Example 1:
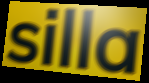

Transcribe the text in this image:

silla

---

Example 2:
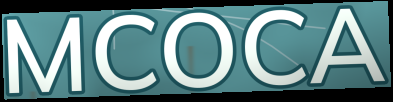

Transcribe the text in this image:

MCOCA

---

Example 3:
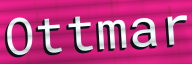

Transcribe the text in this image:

Ottmar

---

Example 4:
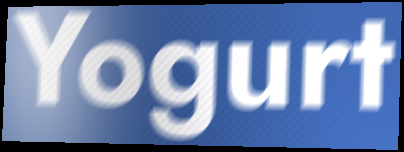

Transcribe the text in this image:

Yogurt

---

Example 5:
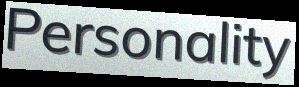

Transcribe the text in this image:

Personality